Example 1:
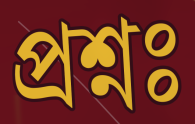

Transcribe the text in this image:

প্ৰশ্নঃ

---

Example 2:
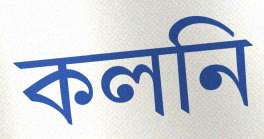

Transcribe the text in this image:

কলনি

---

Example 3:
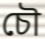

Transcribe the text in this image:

চৌ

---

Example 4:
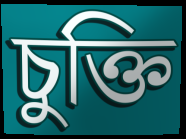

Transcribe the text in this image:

চুক্তি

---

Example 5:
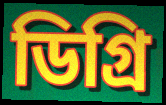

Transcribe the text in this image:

ডিগ্ৰি